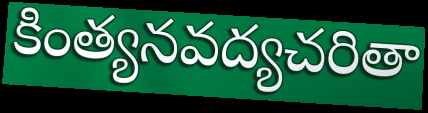
కింత్యనవద్యచరితా